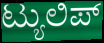
ಟ್ಯುಲಿಪ್